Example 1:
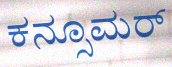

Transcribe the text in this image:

ಕನ್ಸೂಮರ್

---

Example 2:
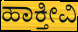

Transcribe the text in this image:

ಹಾಕ್ತೀವಿ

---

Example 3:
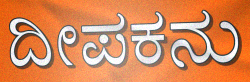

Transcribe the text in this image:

ದೀಪಕನು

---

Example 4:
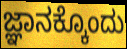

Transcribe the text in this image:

ಜ್ಞಾನಕ್ಕೊಂದು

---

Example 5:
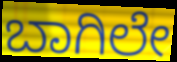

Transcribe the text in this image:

ಬಾಗಿಲೇ